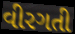
વીરગતી